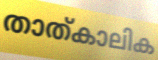
താത്കാലിക